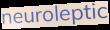
neuroleptic